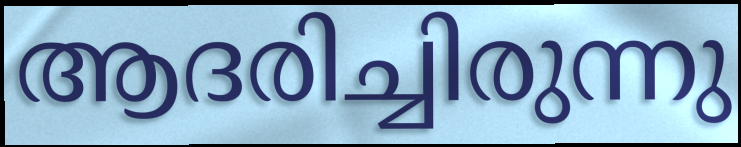
ആദരിച്ചിരുന്നു